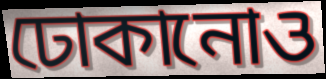
ঢোকানোও